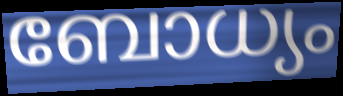
ബോധ്യം